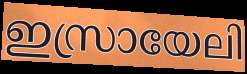
ഇസ്രായേലി